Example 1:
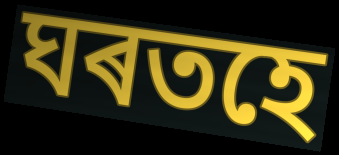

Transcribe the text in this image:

ঘৰতহে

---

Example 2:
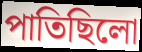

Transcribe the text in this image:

পাতিছিলো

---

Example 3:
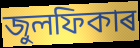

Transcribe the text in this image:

জুলফিকাৰ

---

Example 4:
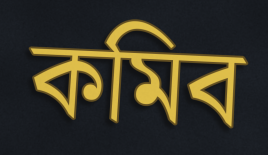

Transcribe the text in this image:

কমিব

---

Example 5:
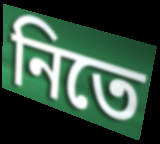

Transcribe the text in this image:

নিতে